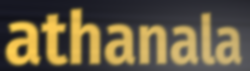
athanala